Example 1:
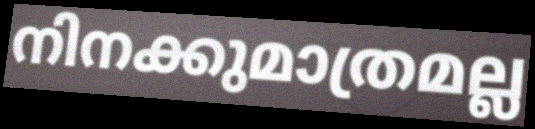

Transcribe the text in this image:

നിനക്കുമാത്രമല്ല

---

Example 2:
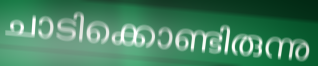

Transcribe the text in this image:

ചാടിക്കൊണ്ടിരുന്നു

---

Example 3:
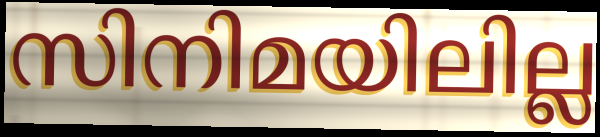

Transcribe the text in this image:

സിനിമയിലില്ല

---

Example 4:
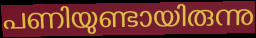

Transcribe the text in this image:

പണിയുണ്ടായിരുന്നു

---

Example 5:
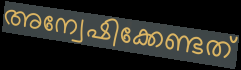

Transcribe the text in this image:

അന്വേഷിക്കേണ്ടത്